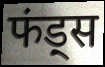
फंड्‌स